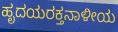
ಹೃದಯರಕ್ತನಾಳೀಯ